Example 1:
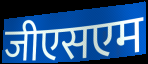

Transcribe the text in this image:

जीएसएम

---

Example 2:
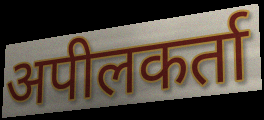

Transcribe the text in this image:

अपीलकर्ता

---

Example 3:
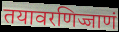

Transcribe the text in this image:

तयावरणिज्जाणं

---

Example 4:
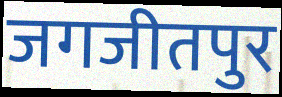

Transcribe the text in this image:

जगजीतपुर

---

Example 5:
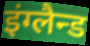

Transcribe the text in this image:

इंग्लैन्ड